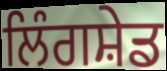
ਲਿੰਗਸ਼ੇਡ